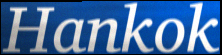
Hankok